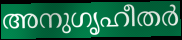
അനുഗൃഹീതർ